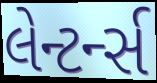
લેન્ટર્ન્સ